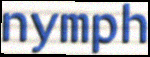
nymph